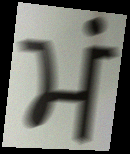
ਮਂ